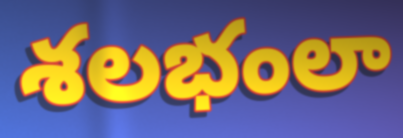
శలభంలా